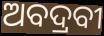
ଅବଦ୍ରବୀ